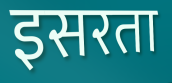
इसरता